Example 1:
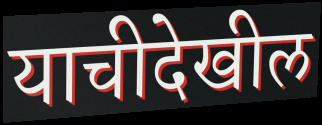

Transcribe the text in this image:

याचीदेखील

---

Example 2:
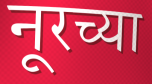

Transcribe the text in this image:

नूरच्या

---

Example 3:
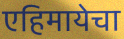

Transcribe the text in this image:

एहिमायेचा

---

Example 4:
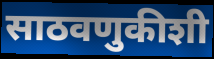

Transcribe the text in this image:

साठवणुकीशी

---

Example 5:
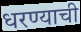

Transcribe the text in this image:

धरण्याची